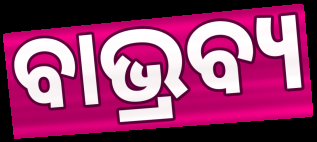
ବାଭ୍ରବ୍ୟ